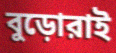
বুড়োরাই